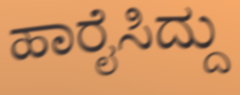
ಹಾರೈಸಿದ್ದು